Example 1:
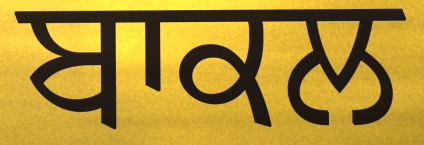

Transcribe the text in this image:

ਬਾਕਲ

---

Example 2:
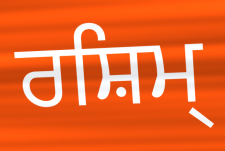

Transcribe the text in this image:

ਰਸ਼ਿਮ੍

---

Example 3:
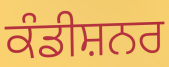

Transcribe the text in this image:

ਕੰਡੀਸ਼ਨਰ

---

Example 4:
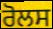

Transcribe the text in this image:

ਰੋਲਸ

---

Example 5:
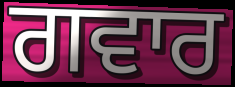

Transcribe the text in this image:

ਗਵਾਰ